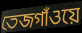
তেজগাঁওয়ে